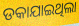
ଡକାଯାଇଥିଲା